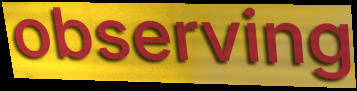
observing